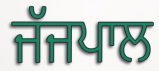
ਜੱਜਪਾਲ